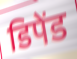
डिपेंड